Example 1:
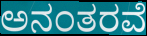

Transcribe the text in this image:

ಅನಂತರವೆ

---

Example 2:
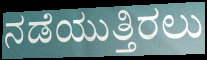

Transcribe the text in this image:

ನಡೆಯುತ್ತಿರಲು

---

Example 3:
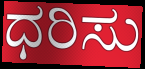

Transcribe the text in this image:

ಧರಿಸು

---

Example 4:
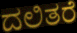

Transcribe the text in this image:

ದಲಿತರೆ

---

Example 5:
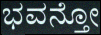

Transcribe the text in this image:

ಭವನ್ತೋ